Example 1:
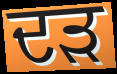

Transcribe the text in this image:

ਦੜ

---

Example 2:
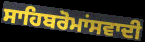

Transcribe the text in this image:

ਸਾਹਿਬਰੋਮਾਂਸਵਾਦੀ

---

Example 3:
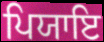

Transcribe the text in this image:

ਪਿਯਾਇ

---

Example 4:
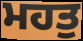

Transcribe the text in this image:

ਮਹਤੁ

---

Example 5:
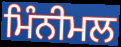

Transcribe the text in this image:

ਮਿੰਨੀਮਲ